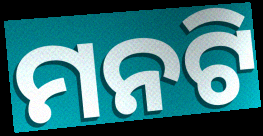
ମନଟି